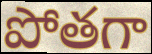
పోతగా